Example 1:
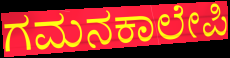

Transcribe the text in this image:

ಗಮನಕಾಲೇಪಿ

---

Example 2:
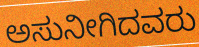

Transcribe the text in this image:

ಅಸುನೀಗಿದವರು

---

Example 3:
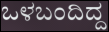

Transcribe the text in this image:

ಒಳಬಂದಿದ್ದ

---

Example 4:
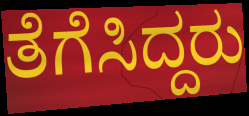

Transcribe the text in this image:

ತೆಗೆಸಿದ್ದರು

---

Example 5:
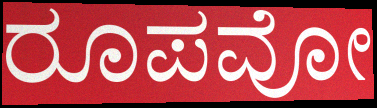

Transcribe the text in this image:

ರೂಪವೋ